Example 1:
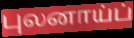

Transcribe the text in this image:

புலனாய்ப்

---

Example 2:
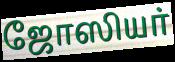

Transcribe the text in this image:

ஜோஸியர்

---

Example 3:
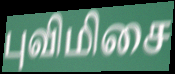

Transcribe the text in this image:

புவிமிசை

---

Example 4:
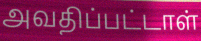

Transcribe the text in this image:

அவதிப்பட்டாள்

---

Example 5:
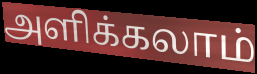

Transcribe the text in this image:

அளிக்கலாம்